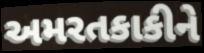
અમરતકાકીને